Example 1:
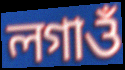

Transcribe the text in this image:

লগাওঁ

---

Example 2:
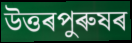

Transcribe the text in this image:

উত্তৰপুৰুষৰ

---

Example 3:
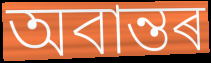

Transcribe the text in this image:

অবান্তৰ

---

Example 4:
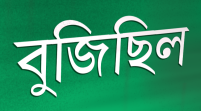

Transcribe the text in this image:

বুজিছিল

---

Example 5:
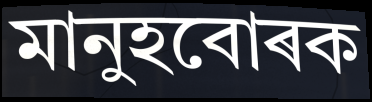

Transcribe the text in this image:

মানুহবোৰক